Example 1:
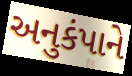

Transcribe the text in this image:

અનુકંપાને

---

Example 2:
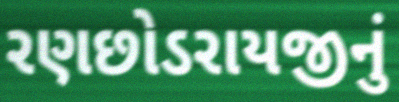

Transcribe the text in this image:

રણછોડરાયજીનું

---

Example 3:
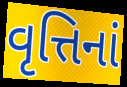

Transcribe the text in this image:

વૃત્તિનાં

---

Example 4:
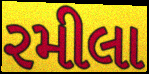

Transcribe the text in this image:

રમીલા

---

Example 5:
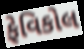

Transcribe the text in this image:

ફેવિકોલ